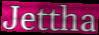
Jettha